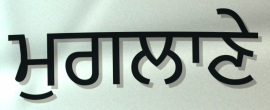
ਮੁਗਲਾਣੇ